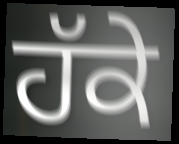
ਹੱਕੇ